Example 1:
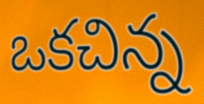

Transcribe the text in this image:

ఒకచిన్న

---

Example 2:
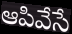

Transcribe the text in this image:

ఆపివేసే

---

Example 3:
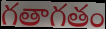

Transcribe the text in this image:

గతాగతం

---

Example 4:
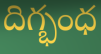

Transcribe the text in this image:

దిగ్భంధ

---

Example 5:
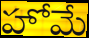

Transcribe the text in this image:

హోమే